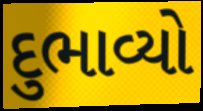
દુભાવ્યો